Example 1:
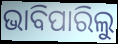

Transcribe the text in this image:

ଭାବିପାରିଲୁ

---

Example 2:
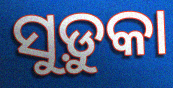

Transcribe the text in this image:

ସୁଡ଼ୁକା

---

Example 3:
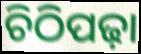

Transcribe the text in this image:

ଚିଠିପଢ଼ା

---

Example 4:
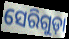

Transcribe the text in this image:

ସେରିଗୁଡ଼ା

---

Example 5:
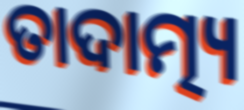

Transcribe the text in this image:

ତାଦାତ୍ମ୍ୟ